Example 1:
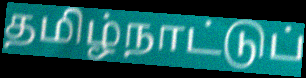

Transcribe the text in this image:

தமிழ்நாட்டுப்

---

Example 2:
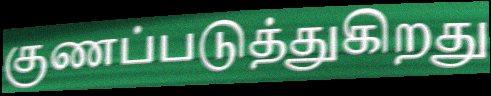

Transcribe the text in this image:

குணப்படுத்துகிறது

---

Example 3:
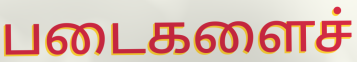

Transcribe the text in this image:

படைகளைச்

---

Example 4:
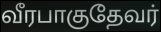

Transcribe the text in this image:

வீரபாகுதேவர்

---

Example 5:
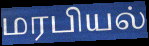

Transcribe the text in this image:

மரபியல்